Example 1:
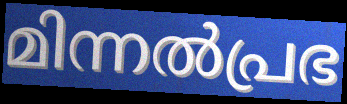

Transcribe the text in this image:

മിന്നൽപ്രഭ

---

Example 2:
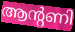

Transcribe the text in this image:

ആന്റണി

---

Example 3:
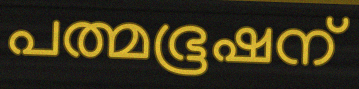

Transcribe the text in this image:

പത്മഭൂഷന്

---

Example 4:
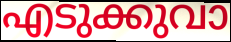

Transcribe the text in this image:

എടുക്കുവാ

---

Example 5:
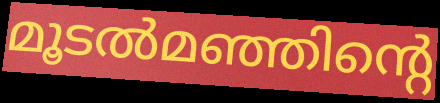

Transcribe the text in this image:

മൂടൽമഞ്ഞിന്റെ